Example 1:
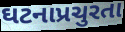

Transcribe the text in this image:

ઘટનાપ્રચુરતા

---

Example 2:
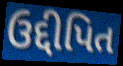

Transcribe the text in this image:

ઉદ્દીપિત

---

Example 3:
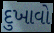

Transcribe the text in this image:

દુખાવો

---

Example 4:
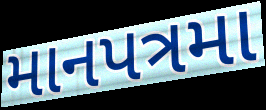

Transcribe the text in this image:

માનપત્રમા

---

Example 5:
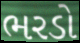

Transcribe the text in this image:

ભરડો